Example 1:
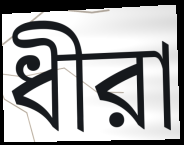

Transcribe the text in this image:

ধীরা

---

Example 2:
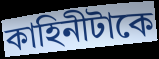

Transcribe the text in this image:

কাহিনীটাকে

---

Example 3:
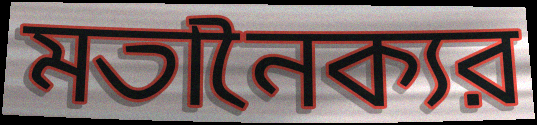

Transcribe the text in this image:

মতানৈক্যর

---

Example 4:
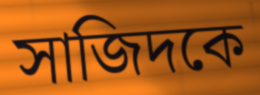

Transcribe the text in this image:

সাজিদকে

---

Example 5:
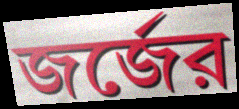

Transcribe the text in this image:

জর্জের